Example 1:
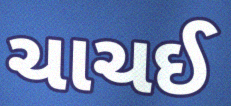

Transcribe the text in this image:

ચાચઈ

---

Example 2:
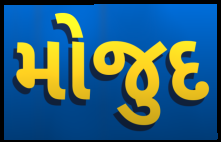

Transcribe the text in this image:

મોજુદ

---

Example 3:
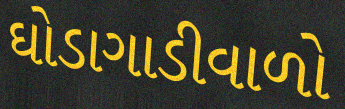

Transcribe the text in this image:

ઘોડાગાડીવાળો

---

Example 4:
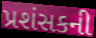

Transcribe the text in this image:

પ્રશંસકની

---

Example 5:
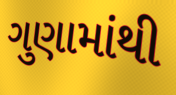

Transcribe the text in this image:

ગુણામાંથી